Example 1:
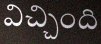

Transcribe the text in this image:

విచ్చింది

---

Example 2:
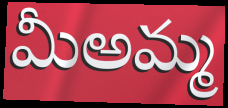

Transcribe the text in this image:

మీఅమ్మ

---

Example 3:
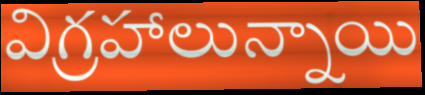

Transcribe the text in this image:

విగ్రహాలున్నాయి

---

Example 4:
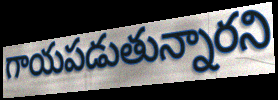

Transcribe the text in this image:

గాయపడుతున్నారని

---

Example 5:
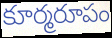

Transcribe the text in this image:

కూర్మరూపం